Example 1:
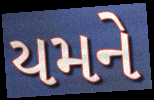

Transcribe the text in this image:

યમને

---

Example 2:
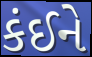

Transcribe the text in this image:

કંઈને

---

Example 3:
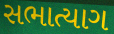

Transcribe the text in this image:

સભાત્યાગ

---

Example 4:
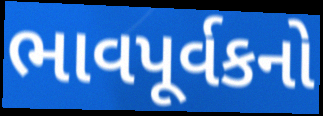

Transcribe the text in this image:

ભાવપૂર્વકનો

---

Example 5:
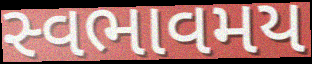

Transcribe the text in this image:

સ્વભાવમય